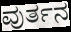
ವುರ್ತನ